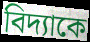
বিদ্যাকে